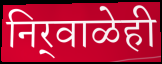
निर्वाळेही